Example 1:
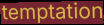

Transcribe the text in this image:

temptation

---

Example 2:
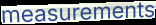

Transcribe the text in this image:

measurements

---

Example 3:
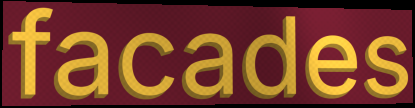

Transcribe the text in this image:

facades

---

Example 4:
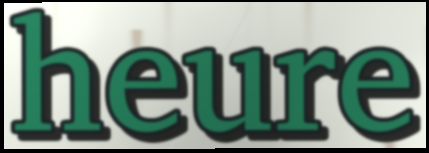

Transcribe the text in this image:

heure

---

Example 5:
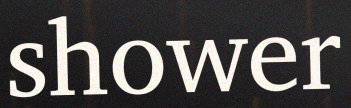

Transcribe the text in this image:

shower